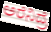
ಅರೆನಿದ್ರೆ